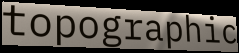
topographic